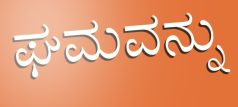
ಘಮವನ್ನು